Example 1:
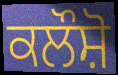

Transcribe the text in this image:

ਕਲੌਸ਼ੋ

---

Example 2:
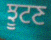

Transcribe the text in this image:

ਝੂਟਣ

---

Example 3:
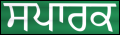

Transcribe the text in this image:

ਸਪਾਰਕ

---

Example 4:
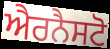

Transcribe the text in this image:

ਐਰਨੈਸਟੋ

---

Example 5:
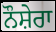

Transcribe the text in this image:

ਨੌਸ਼ੇਰਾ